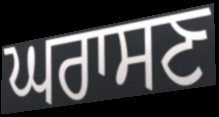
ਘਰਾਸਣ